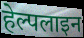
हेल्पलाइन